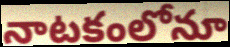
నాటకంలోనూ